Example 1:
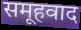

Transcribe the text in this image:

समूहवाद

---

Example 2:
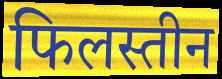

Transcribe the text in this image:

फिलस्तीन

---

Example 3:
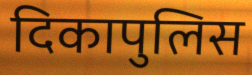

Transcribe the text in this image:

दिकापुलिस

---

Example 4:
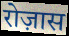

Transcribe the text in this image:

रोज़ास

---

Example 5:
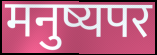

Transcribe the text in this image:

मनुष्यपर